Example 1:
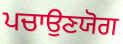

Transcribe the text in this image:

ਪਚਾਉਣਯੋਗ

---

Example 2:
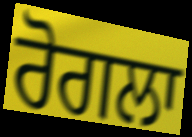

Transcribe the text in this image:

ਰੋਗਲਾ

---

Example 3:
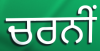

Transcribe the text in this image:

ਚਰਨੀਂ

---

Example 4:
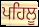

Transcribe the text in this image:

ਪਹਿਲੂ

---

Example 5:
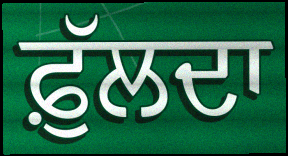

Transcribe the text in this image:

ਫ਼ੁੱਲਦਾ